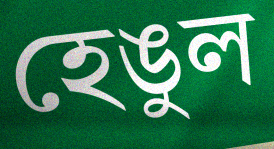
হেঙুল